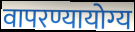
वापरण्यायोग्य